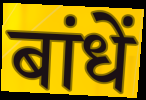
बांधें